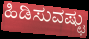
ಹಿಡಿಸುವಷ್ಟು